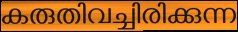
കരുതിവച്ചിരിക്കുന്ന